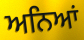
ਅਨਿਆਂ